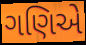
ગણિએ